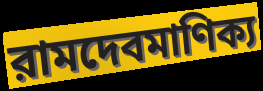
রামদেবমাণিক্য